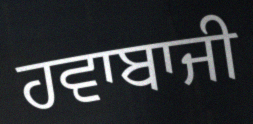
ਹਵਾਬਾਜੀ